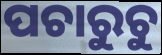
ପଚାରୁଚୁ